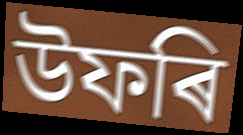
উফৰি